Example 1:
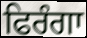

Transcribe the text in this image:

ਫਿਰੰਗਾ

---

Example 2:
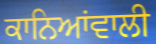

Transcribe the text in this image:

ਕਾਨਿਆਂਵਾਲੀ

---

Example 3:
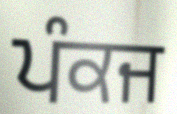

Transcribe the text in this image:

ਪੰਕਜ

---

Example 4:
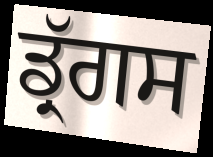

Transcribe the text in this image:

ਡ੍ਰੱਗਸ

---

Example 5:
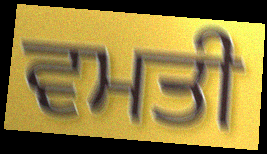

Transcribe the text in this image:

ਵਮਤੀ